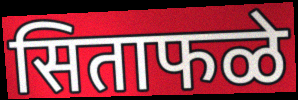
सिताफळे